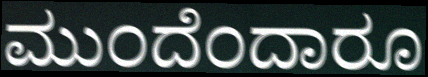
ಮುಂದೆಂದಾರೂ